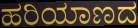
ಹರಿಯಾಣದ